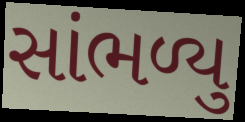
સાંભળ્યુ